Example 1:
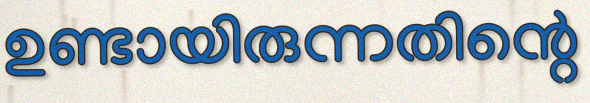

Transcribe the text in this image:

ഉണ്ടായിരുന്നതിന്റെ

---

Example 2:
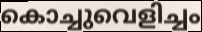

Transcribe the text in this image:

കൊച്ചുവെളിച്ചം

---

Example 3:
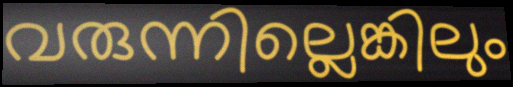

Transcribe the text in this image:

വരുന്നില്ലെങ്കിലും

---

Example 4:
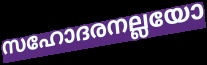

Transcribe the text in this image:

സഹോദരനല്ലയോ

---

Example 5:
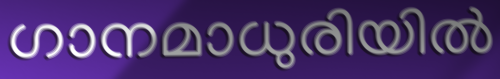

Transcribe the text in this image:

ഗാനമാധുരിയിൽ